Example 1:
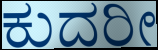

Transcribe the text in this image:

ಕುದರೀ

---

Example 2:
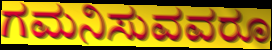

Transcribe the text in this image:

ಗಮನಿಸುವವರೂ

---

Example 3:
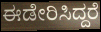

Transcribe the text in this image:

ಈಡೇರಿಸಿದ್ದರೆ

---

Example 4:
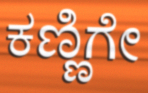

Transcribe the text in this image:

ಕಣ್ಣಿಗೇ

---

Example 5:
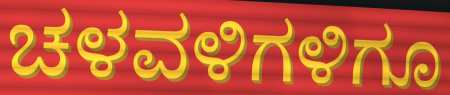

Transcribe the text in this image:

ಚಳವಳಿಗಳಿಗೂ